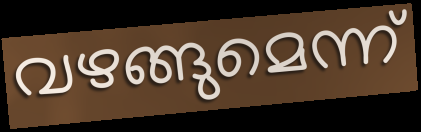
വഴങ്ങുമെന്ന്